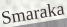
Smaraka